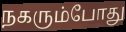
நகரும்போது